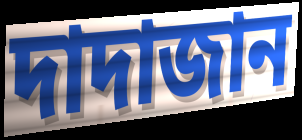
দাদাজান